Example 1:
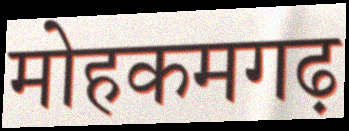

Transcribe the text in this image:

मोहकमगढ़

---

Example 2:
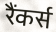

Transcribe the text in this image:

रैंकर्स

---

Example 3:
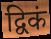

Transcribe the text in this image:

द्विकं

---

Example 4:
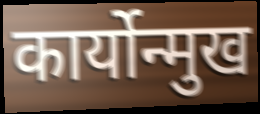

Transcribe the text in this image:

कार्योन्मुख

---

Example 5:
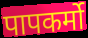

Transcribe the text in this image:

पापकर्मो